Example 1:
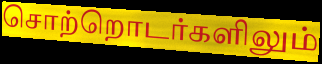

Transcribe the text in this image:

சொற்றொடர்களிலும்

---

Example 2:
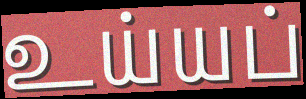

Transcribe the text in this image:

உய்யப்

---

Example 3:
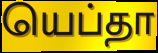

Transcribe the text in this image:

யெப்தா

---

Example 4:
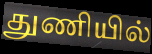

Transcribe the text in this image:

துணியில்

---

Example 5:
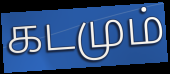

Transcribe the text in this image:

கடமும்